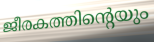
ജീരകത്തിന്റെയും